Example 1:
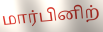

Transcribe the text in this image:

மார்பினிற்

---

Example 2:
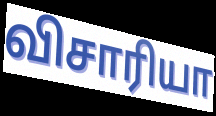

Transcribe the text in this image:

விசாரியா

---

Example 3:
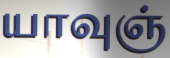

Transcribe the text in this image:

யாவுஞ்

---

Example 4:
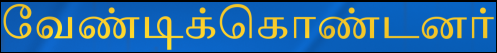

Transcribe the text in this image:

வேண்டிக்கொண்டனர்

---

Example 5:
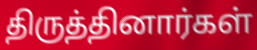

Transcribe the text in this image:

திருத்தினார்கள்